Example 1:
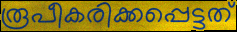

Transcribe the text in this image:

രൂപീകരിക്കപ്പെട്ടത്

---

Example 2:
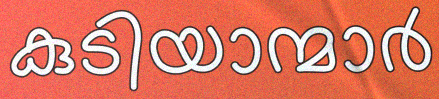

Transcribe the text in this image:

കുടിയാന്മാർ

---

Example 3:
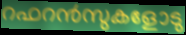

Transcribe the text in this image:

റഫറൻസുകളോടു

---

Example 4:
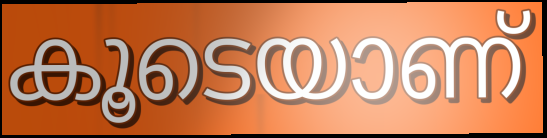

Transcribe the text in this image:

കൂടെയാണ്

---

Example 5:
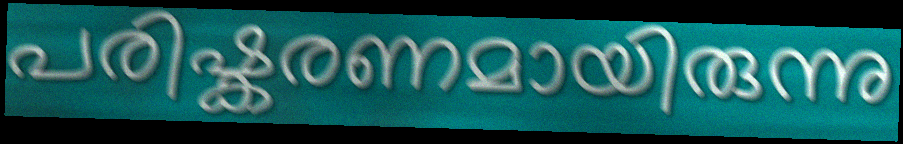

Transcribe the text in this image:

പരിഷ്കരണമായിരുന്നു